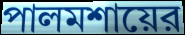
পালমশায়ের